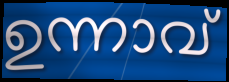
ഉന്നാവ്